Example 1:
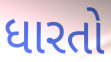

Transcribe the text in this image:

ધારતો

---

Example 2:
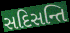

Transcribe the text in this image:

સદિસન્તિ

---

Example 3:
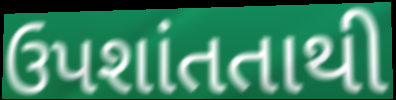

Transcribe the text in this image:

ઉપશાંતતાથી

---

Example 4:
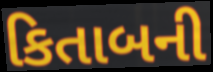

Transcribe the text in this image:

કિતાબની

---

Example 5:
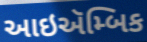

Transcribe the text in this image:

આઇઍમ્બિક